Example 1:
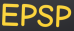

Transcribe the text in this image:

EPSP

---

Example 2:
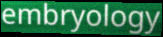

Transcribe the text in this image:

embryology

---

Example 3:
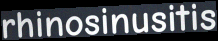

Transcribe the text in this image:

rhinosinusitis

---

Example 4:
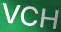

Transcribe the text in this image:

VCH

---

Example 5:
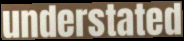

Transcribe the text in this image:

understated